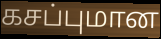
கசப்புமான